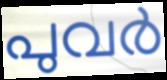
പുവർ